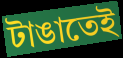
টাঙাতেই